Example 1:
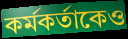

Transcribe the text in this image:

কর্মকর্তাকেও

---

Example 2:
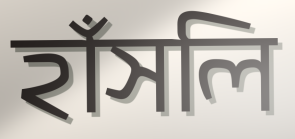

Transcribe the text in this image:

হাঁসলি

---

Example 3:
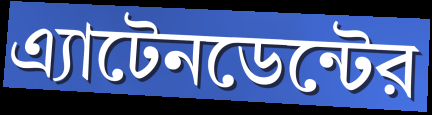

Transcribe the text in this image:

এ্যাটেনডেন্টের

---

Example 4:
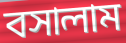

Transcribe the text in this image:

বসালাম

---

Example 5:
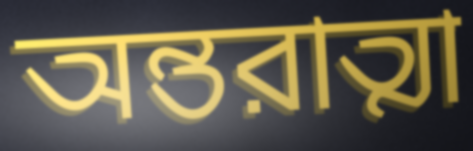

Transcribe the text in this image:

অন্তরাত্মা